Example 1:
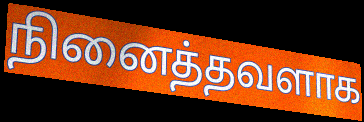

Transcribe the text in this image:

நினைத்தவளாக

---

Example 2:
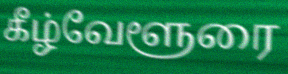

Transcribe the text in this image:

கீழ்வேளூரை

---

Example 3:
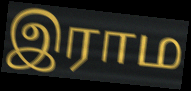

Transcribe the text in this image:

இராம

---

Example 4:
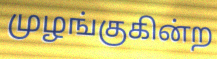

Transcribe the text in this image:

முழங்குகின்ற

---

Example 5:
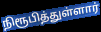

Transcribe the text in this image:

நிரூபித்துள்ளார்